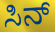
ಸಿನ್